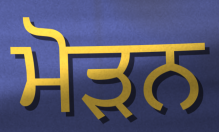
ਮੋੜਨ